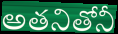
అతనితోనీ